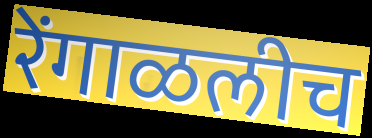
रेंगाळलीच